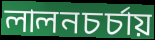
লালনচর্চায়